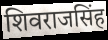
शिवराजसिंह